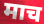
माच